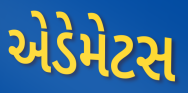
એડેમેટસ